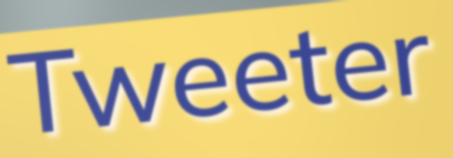
Tweeter